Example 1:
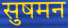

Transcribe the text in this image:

सुषमन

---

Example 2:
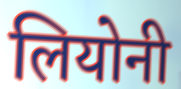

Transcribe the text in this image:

लियोनी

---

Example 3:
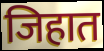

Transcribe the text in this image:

जिहात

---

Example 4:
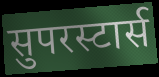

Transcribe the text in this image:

सुपरस्टार्स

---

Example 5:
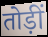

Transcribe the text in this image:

तोड़ीं